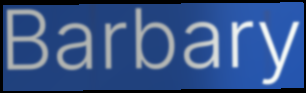
Barbary